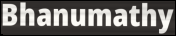
Bhanumathy